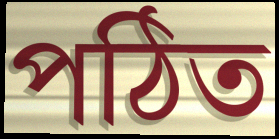
পঠিত